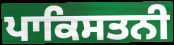
ਪਾਕਿਸਤਨੀ